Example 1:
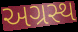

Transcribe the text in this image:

અગ્રસ્થ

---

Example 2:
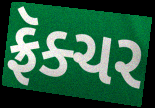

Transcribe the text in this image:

ફ્રૅક્ચર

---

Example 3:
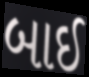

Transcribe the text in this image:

બાઈ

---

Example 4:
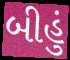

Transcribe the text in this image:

બીહું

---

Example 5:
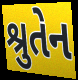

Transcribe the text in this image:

શ્રુતેન